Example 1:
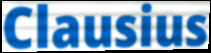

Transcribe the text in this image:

Clausius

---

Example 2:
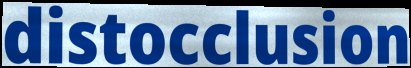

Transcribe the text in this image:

distocclusion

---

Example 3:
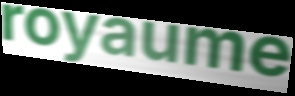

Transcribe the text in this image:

royaume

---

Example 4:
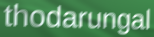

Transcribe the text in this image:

thodarungal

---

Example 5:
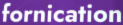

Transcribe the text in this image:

fornication